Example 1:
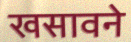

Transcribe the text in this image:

खसावने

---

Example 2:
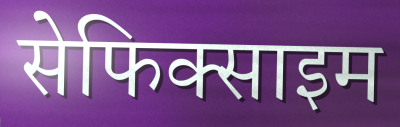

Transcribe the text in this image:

सेफिक्साइम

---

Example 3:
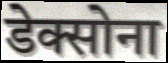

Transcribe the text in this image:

डेक्सोना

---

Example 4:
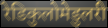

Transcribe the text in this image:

रेडिकुलोमेडुलरी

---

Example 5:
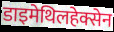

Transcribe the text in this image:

डाइमेथिलहेक्सेन